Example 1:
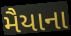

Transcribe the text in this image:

મૈયાના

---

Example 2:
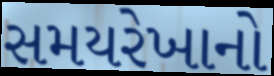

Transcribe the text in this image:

સમયરેખાનો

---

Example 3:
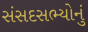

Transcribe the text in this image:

સંસદસભ્યોનું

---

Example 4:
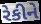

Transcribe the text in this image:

રેકીને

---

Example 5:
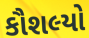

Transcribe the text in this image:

કૌશલ્યો